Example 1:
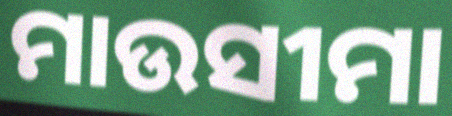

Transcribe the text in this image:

ମାଉସୀମା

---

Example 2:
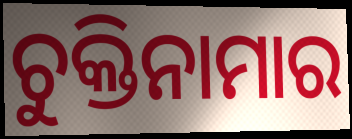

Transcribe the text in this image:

ଚୁକ୍ତିନାମାର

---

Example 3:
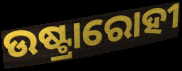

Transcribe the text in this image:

ଉଷ୍ଟ୍ରାରୋହୀ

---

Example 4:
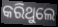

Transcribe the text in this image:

କରିଥୁଲେ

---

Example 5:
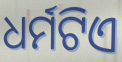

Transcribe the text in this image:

ଧର୍ମଟିଏ